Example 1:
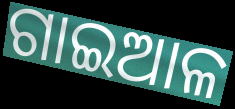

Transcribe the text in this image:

ଗାଇଆଳ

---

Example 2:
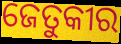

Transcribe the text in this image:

ଜେତୁକୀର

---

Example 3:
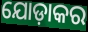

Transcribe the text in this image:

ଯୋଡ଼ାକର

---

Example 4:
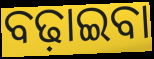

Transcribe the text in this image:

ବଢ଼ାଇବା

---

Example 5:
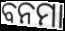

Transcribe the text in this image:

ବନମା